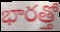
భారత్తో